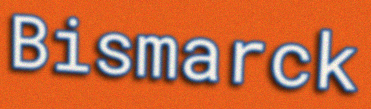
Bismarck